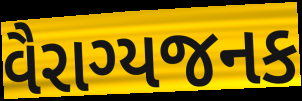
વૈરાગ્યજનક